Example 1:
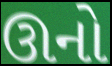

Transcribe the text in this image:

ઊનો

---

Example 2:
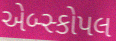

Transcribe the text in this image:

એબ્સ્કોપલ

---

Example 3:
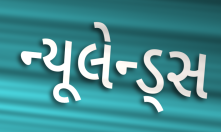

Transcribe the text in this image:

ન્યૂલેન્ડ્સ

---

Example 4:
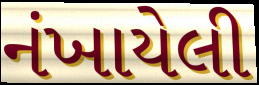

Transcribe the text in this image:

નંખાયેલી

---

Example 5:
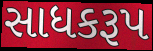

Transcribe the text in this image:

સાધકરૂપ